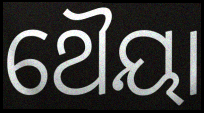
ଥୈୟା